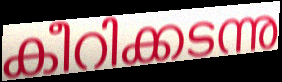
കീറിക്കടന്നു